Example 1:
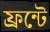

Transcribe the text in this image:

ফ্রন্টে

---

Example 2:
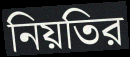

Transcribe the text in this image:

নিয়তির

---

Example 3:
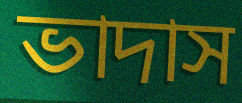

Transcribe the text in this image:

ভাদাস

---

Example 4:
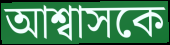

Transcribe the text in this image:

আশ্বাসকে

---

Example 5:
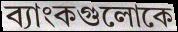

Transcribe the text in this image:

ব্যাংকগুলোকে